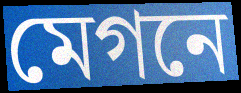
মেগনে